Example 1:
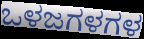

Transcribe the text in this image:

ಒಳಜಗಳಗಳ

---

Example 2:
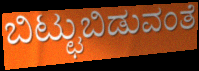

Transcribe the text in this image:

ಬಿಟ್ಟುಬಿಡುವಂತೆ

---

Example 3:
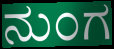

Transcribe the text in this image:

ನುಂಗ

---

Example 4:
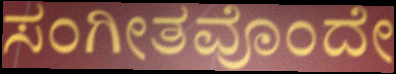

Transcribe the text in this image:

ಸಂಗೀತವೊಂದೇ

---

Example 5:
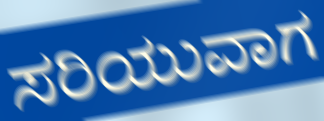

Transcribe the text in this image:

ಸರಿಯುವಾಗ